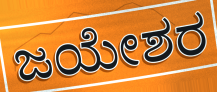
ಜಯೇಶರ